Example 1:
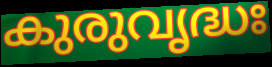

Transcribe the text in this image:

കുരുവൃദ്ധഃ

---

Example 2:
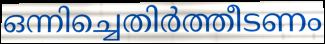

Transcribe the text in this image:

ഒന്നിച്ചെതിർത്തീടണം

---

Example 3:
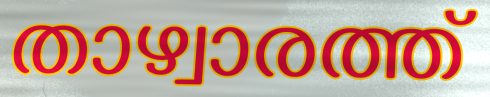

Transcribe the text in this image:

താഴ്വാരത്ത്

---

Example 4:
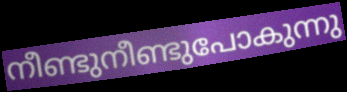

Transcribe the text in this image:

നീണ്ടുനീണ്ടുപോകുന്നു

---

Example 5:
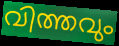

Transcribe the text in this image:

വിത്തവും